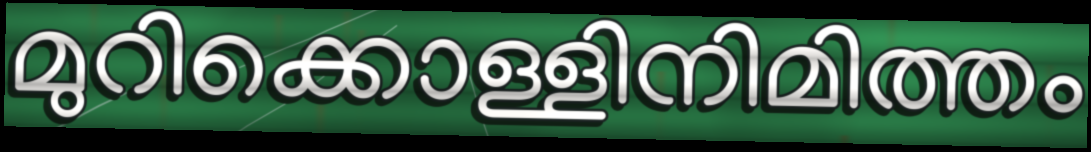
മുറിക്കൊള്ളിനിമിത്തം